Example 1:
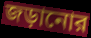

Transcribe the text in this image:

জড়ানোর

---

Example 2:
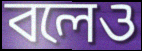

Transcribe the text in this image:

বলেও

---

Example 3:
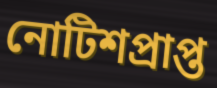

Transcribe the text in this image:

নোটিশপ্রাপ্ত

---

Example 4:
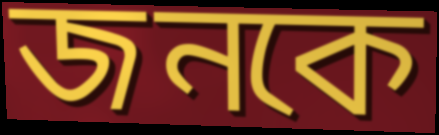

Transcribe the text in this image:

জনকে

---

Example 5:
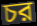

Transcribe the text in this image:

চর